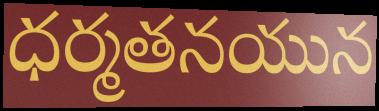
ధర్మతనయున